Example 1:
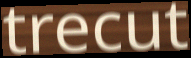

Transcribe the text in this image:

trecut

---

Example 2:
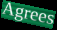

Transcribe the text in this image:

Agrees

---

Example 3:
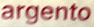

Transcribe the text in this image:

argento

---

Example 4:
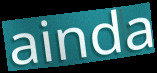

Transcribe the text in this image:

ainda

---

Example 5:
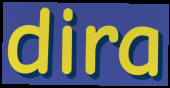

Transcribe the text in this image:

dira